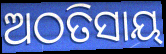
ଅଠତିସାୟ